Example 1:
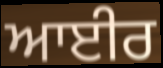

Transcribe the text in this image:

ਆਈਰ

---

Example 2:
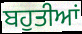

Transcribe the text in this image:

ਬਹੁਤੀਆਂ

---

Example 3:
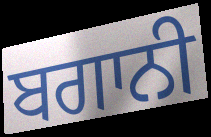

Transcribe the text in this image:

ਬਗਾਨੀ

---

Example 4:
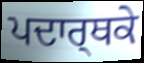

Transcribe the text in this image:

ਪਦਾਰ੍ਥਕੇ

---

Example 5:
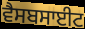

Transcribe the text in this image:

ਵੈਸਬਸਾਈਟ